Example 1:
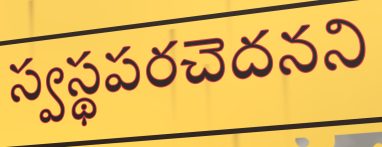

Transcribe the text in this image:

స్వస్థపరచెదనని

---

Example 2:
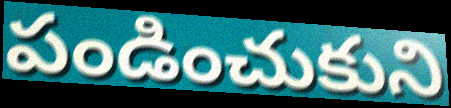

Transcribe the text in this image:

పండించుకుని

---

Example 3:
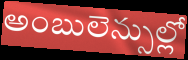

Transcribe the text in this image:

అంబులెన్సుల్లో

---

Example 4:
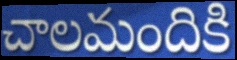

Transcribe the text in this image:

చాలమందికి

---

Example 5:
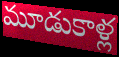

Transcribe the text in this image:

మూడుకాళ్ల